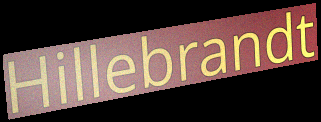
Hillebrandt